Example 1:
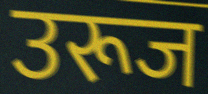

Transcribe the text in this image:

उरूज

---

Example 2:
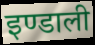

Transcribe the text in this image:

इण्डाली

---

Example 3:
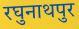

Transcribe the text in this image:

रघुनाथपुर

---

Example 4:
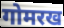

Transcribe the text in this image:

गोमरख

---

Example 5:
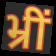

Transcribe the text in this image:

भ्रीं